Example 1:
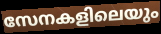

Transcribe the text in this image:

സേനകളിലെയും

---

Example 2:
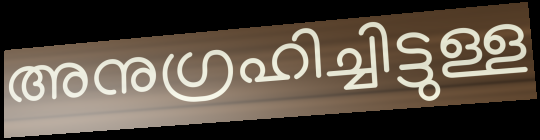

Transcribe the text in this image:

അനുഗ്രഹിച്ചിട്ടുള്ള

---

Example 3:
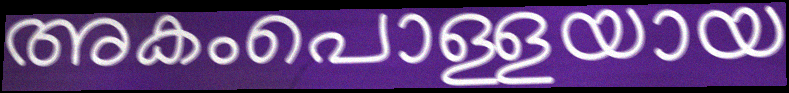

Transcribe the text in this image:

അകംപൊള്ളയായ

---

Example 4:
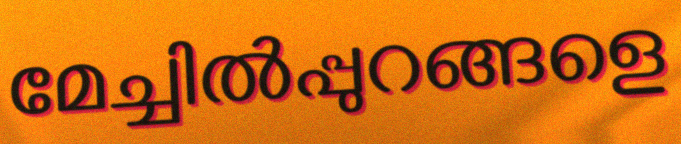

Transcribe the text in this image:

മേച്ചിൽപ്പുറങ്ങളെ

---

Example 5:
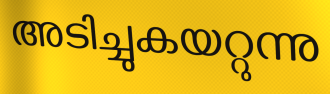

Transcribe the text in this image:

അടിച്ചുകയറ്റുന്നു